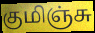
குமிஞ்சு